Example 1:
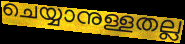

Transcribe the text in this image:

ചെയ്യാനുള്ളതല്ല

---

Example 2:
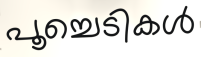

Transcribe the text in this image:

പൂച്ചെടികൾ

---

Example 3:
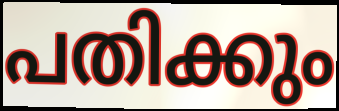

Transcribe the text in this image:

പതിക്കും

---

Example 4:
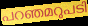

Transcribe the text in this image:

പറഞമറുപടി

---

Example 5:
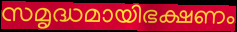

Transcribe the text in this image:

സമൃദ്ധമായിഭക്ഷണം